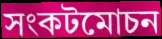
সংকটমোচন